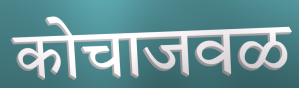
कोचाजवळ